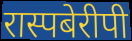
रास्पबेरीपी